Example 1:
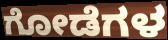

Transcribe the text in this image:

ಗೋಡೆಗಳ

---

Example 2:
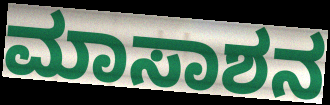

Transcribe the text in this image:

ಮಾಸಾಶನ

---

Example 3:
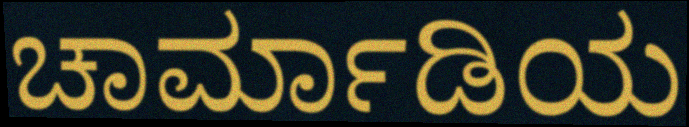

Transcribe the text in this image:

ಚಾರ್ಮಾಡಿಯ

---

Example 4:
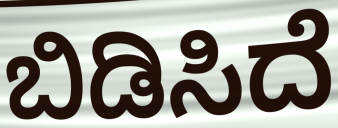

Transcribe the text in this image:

ಬಿಡಿಸಿದೆ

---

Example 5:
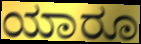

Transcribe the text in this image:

ಯಾರೂ